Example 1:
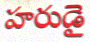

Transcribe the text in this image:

హరుడై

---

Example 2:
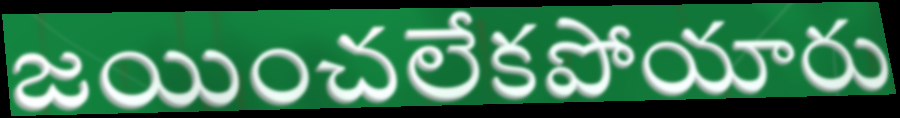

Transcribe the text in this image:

జయించలేకపోయారు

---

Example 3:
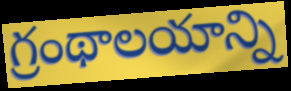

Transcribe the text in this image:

గ్రంథాలయాన్ని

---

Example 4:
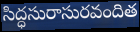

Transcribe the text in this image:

సిద్ధసురాసురవందిత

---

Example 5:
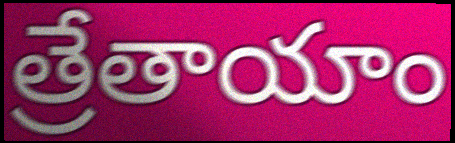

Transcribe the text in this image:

త్రేతాయాం